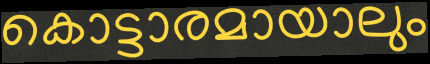
കൊട്ടാരമായാലും